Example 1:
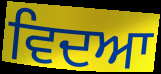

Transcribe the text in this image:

ਵਿਦਆ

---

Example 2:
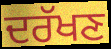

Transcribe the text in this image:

ਦਰੱਖਣ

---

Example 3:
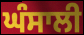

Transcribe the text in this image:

ਘੰਸਾਲੀ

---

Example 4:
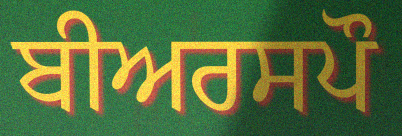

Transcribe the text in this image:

ਬੀਅਰਸਪੌ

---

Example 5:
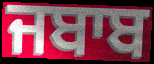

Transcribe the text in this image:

ਜਬਾਬ